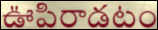
ఊపిరాడటం